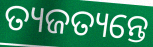
ତ୍ୟଜତ୍ୟନ୍ତେ